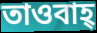
তাওবাহ্